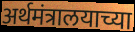
अर्थमंत्रालयाच्या